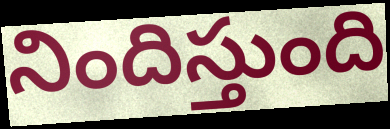
నిందిస్తుంది